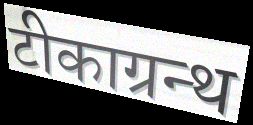
टीकाग्रन्थ